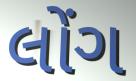
લોંગ